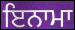
ਇਨਾਮਾ